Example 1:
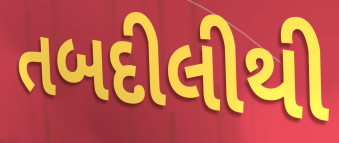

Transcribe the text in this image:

તબદીલીથી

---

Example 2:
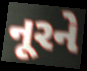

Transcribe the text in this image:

નૂરને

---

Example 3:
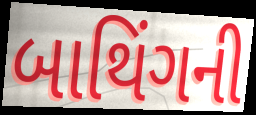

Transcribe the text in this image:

બાથિંગની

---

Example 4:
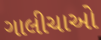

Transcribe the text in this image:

ગાલીચાઓ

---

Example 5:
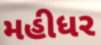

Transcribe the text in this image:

મહીધર